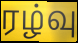
ரழ்வு